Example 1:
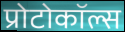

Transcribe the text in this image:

प्रोटोकॉल्स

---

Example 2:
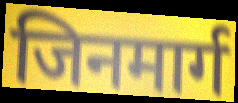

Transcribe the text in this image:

जिनमार्ग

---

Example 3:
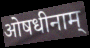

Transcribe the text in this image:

ओषधीनाम्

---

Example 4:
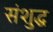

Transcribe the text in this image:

संशुद्ध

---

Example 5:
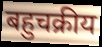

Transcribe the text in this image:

बहुचक्रीय